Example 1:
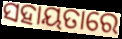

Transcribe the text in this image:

ସହାୟତାରେ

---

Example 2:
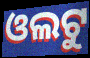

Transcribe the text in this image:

ଓଲଟୁ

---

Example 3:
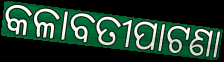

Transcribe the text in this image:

କଳାବତୀପାଟଣା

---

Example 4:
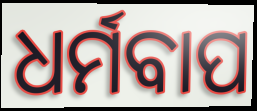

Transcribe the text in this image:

ଧର୍ମବାପ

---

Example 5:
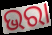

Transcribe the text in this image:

ଭରା